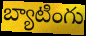
బ్యాటింగు